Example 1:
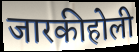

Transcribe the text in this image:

जारकीहोली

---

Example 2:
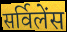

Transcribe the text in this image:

सर्विलेंस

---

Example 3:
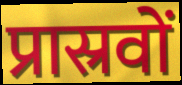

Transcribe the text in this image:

प्रास्रवों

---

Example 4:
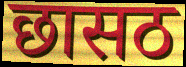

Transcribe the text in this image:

छासठ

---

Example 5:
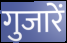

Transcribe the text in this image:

गुजारें